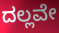
ದಲ್ಲವೇ